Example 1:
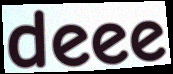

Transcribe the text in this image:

deee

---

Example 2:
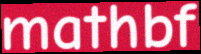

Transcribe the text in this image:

mathbf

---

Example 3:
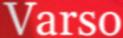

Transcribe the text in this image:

Varso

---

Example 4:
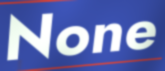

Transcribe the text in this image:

None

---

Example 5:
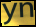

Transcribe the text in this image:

yn